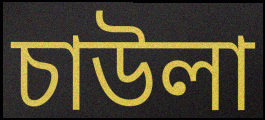
চাউলা